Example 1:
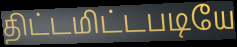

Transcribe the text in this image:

திட்டமிட்டபடியே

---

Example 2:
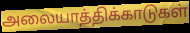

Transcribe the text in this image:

அலையாத்திக்காடுகள்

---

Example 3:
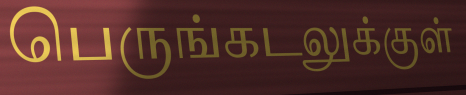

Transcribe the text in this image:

பெருங்கடலுக்குள்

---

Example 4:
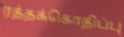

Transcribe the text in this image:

ரத்தக்கொதிப்பு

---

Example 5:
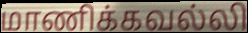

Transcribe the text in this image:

மாணிக்கவல்லி